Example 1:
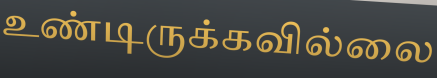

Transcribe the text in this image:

உண்டிருக்கவில்லை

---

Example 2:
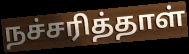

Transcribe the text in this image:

நச்சரித்தாள்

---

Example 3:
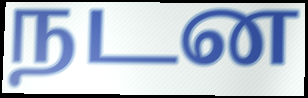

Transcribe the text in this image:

நடன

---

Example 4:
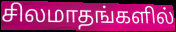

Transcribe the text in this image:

சிலமாதங்களில்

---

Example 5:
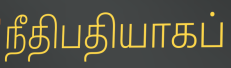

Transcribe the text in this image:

நீதிபதியாகப்